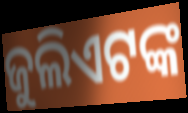
ଜୁଲିଏଟଙ୍କ